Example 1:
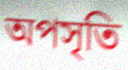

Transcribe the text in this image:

অপসৃতি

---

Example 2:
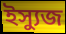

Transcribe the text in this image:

ইস্যুজ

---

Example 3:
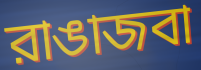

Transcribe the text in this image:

রাঙাজবা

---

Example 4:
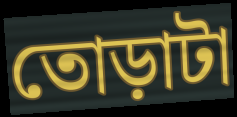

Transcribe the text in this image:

তোড়াটা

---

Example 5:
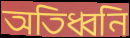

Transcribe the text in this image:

অতিধ্বনি